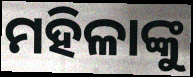
ମହିଳାଙ୍କୁ